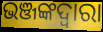
ଭଞ୍ଜଙ୍କଦ୍ୱାରା